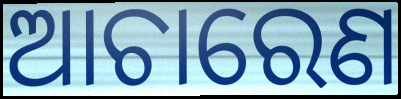
ଆଚାରେଣ